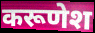
करूणेश